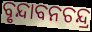
ବୃନ୍ଦାବନଚନ୍ଦ୍ର